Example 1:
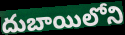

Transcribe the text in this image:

దుబాయిలోని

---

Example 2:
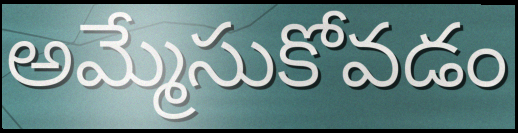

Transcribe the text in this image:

అమ్మేసుకోవడం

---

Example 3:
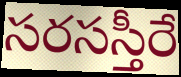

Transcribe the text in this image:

సరసస్తీరే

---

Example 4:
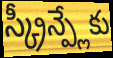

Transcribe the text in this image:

స్క్రీన్ప్లేకు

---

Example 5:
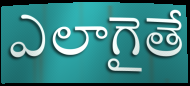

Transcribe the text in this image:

ఎలాగైతే